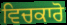
ਵਿਚਕਾਰੋ